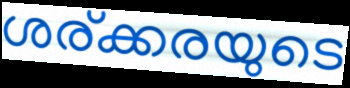
ശര്ക്കരയുടെ